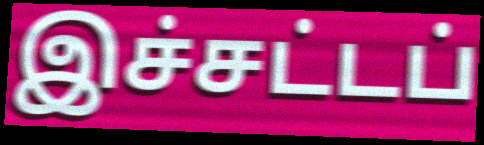
இச்சட்டப்